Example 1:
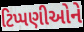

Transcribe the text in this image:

ટિપ્પણીઓને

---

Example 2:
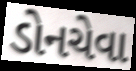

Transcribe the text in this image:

ડોનચેવા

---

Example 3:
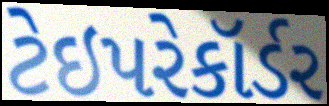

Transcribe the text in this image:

ટેઇપરેકૉર્ડર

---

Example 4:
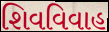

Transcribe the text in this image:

શિવવિવાહ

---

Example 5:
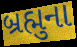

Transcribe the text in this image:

બ્રહ્મુના